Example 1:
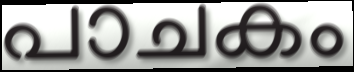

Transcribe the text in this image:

പാചകം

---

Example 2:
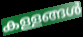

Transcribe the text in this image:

കള്ളങ്ങൾ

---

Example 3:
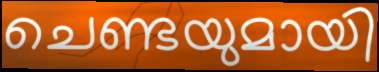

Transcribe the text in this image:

ചെണ്ടയുമായി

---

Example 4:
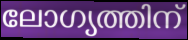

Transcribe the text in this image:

ലോഗ്യത്തിന്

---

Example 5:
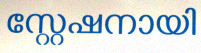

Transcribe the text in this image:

സ്റ്റേഷനായി